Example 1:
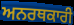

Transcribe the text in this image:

ਅਨਰਥਕਾਰੀ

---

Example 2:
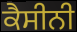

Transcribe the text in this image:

ਕੈਸੀਨੀ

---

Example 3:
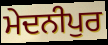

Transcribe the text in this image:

ਮੇਦਨੀਪੁਰ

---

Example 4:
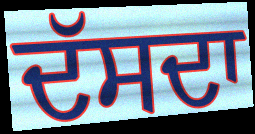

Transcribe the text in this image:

ਦੱਸਦਾ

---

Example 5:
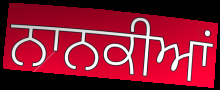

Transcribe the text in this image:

ਨਾਨਕੀਆਂ